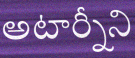
అటార్నీని